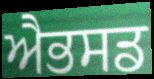
ਐਭਸਡ